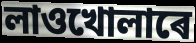
লাওখোলাৰে